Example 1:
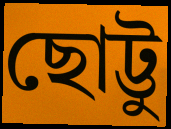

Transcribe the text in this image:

ছোট্টু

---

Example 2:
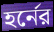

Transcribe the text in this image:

হর্নের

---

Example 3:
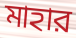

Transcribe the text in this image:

মাহার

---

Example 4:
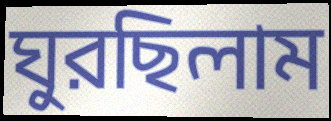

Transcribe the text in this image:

ঘুরছিলাম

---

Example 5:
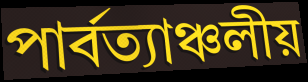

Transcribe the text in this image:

পার্বত্যাঞ্চলীয়